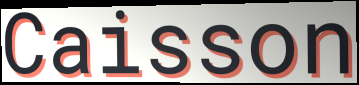
Caisson